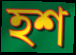
হশ